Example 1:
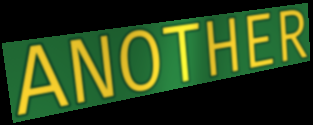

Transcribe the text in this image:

ANOTHER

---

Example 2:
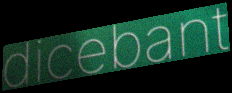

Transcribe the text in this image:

dicebant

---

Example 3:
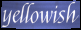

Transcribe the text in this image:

yellowish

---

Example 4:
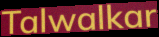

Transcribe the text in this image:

Talwalkar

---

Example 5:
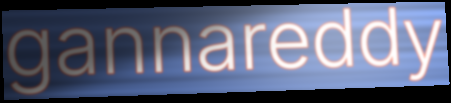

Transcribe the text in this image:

gannareddy